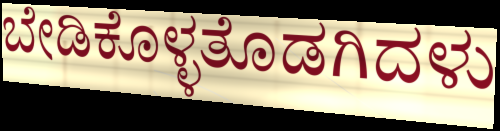
ಬೇಡಿಕೊಳ್ಳತೊಡಗಿದಳು